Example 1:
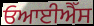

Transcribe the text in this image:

ਓਆਈਐੱਸ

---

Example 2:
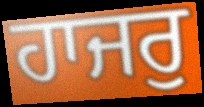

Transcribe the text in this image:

ਹਾਜਰੁ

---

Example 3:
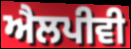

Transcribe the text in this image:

ਐਲਪੀਵੀ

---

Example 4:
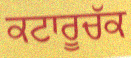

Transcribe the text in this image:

ਕਟਾਰੂਚੱਕ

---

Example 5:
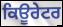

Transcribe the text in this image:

ਕਿਊਰੇਟਰ